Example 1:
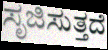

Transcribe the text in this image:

ಸೃಜಿಸುತ್ತದೆ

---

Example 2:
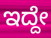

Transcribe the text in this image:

ಇದ್ದೇ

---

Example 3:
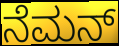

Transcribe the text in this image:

ನೆಮನ್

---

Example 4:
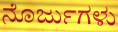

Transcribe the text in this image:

ನೊರ್ಜುಗಳು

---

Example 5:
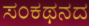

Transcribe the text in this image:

ಸಂಕಥನದ